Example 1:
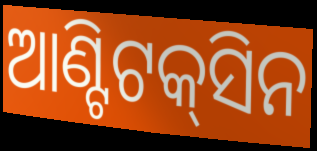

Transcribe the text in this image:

ଆଣ୍ଟିଟକ୍‌ସିନ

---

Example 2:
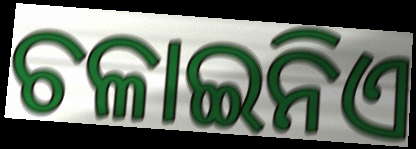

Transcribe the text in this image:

ଚଳାଇନିଏ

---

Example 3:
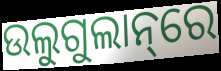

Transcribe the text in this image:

ଉଲୁଗୁଲାନ୍‌ରେ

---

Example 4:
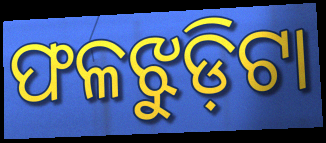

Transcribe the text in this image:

ଫଳଝୁଡ଼ିଟା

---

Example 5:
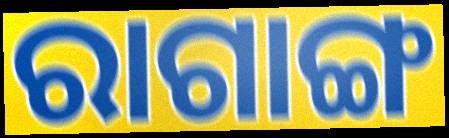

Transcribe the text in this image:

ରାଗାଙ୍ଗ